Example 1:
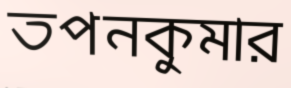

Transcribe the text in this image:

তপনকুমার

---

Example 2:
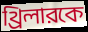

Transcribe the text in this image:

থ্রিলারকে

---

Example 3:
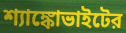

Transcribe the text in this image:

শ্যাঙ্কোভাইটের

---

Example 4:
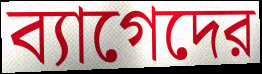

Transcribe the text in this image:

ব্যাগেদের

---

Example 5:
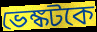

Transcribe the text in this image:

ভেঙ্কটকে